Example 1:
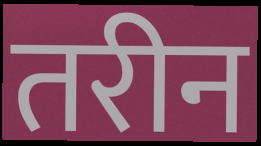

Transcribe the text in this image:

तरीन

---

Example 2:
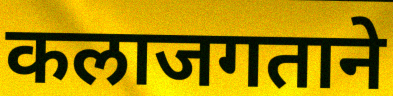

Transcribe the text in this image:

कलाजगताने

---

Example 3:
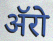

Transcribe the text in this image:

ॲरो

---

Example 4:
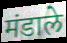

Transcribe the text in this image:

मंडाले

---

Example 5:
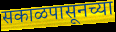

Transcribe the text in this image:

सकाळपासूनच्या